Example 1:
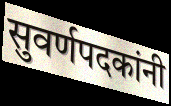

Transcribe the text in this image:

सुवर्णपदकांनी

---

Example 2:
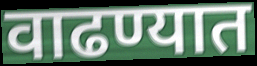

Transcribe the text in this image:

वाढण्यात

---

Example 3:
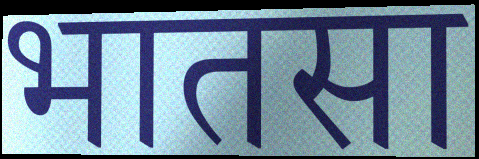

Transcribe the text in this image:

भातसा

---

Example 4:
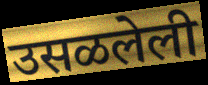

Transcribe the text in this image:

उसळलेली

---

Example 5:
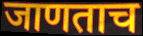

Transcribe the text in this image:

जाणताच